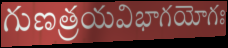
గుణత్రయవిభాగయోగః